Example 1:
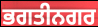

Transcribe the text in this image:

ਭਗਤੀਨਗਰ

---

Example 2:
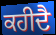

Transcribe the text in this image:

ਕਹੀਦੈ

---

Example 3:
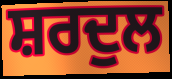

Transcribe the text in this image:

ਸ਼ਰਦੁਲ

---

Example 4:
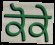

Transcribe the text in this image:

ਕੋਕੇ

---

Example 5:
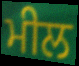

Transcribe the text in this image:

ਮੀਲ